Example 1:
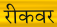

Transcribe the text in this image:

रीकवर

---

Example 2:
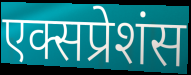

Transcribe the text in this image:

एक्सप्रेशंस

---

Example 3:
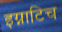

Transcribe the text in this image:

इग्नाटिच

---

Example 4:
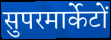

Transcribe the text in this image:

सुपरमार्केटों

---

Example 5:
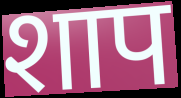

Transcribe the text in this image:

शाप